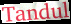
Tandul